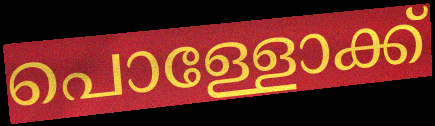
പൊള്ളോക്ക്